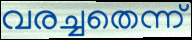
വരച്ചതെന്ന്